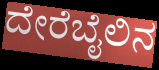
ದೇರೆಬೈಲಿನ